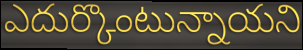
ఎదుర్కొంటున్నాయని